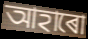
আহাৰো